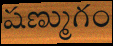
షణ్ముగం